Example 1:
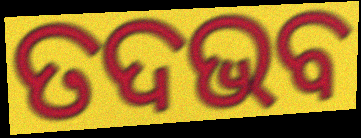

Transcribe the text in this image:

ତଦଭବ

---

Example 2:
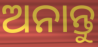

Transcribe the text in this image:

ଅନାନ୍ତୁ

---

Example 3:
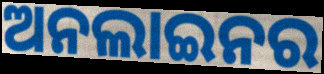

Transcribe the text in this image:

ଅନଲାଇନର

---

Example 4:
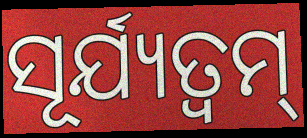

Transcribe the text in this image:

ସୂର୍ଯ୍ୟତ୍ୱମ୍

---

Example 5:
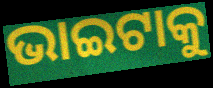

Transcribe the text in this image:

ଭାଇଟାକୁ